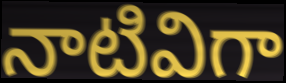
నాటివిగా